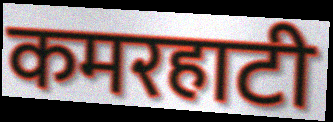
कमरहाटी